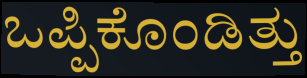
ಒಪ್ಪಿಕೊಂಡಿತ್ತು